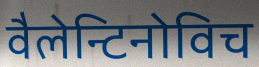
वैलेन्टिनोविच